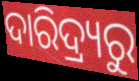
ଦାରିଦ୍ର୍ୟରୁ